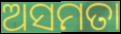
ଅସମତା